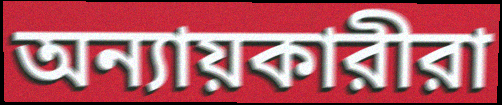
অন্যায়কারীরা